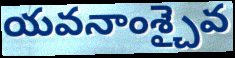
యవనాంశ్చైవ